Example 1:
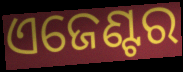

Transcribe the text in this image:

ଏଜେଣ୍ଟର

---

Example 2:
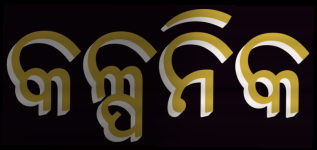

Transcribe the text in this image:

କଳ୍ପନିକ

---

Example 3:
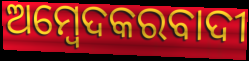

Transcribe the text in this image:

ଅମ୍ବେଦକରବାଦୀ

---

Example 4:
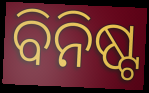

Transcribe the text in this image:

ବିନିଷ୍ଟ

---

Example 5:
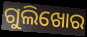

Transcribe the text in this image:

ଗୁଲିଖୋର